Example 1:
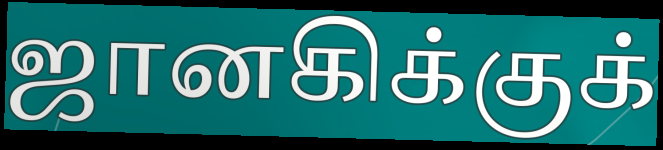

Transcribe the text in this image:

ஜானகிக்குக்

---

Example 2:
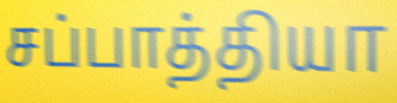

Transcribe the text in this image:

சப்பாத்தியா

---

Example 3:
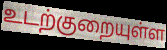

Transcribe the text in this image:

உடற்குறையுள்ள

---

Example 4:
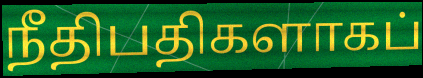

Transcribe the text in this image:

நீதிபதிகளாகப்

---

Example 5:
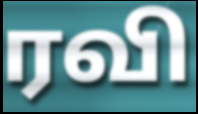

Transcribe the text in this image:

ரவி